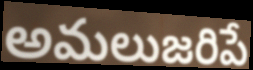
అమలుజరిపే